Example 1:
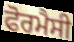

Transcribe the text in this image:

ਫੋਰਮੈਸੀ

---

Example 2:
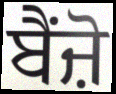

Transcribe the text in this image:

ਬੈਂਜ਼ੋ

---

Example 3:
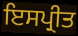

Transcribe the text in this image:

ਇਸਪ੍ਰੀਤ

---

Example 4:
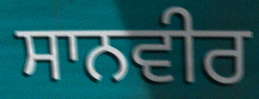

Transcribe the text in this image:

ਸਾਨਵੀਰ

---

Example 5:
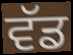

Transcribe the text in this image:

ਵੱਡ